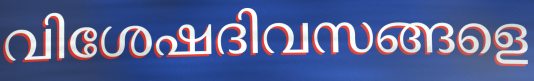
വിശേഷദിവസങ്ങളെ